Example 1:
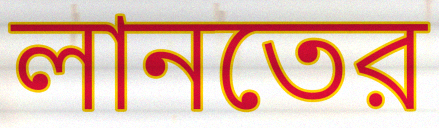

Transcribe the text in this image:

লানতের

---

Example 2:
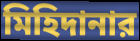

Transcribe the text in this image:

মিহিদানার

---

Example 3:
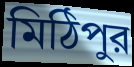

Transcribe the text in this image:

মিঠিপুর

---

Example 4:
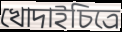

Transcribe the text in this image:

খোদাইচিত্রে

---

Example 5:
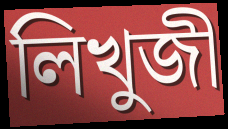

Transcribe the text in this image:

লিখুজী